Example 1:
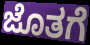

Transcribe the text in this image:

ಜೊತಗೆ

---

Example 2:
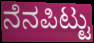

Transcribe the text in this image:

ನೆನಪಿಟ್ಟು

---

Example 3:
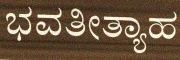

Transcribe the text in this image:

ಭವತೀತ್ಯಾಹ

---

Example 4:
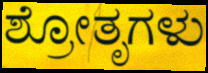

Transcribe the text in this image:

ಶ್ರೋತೃಗಳು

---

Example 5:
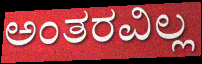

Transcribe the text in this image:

ಅಂತರವಿಲ್ಲ